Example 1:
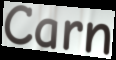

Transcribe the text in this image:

Carn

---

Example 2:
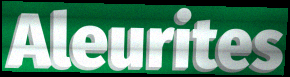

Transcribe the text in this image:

Aleurites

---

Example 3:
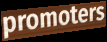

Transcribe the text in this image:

promoters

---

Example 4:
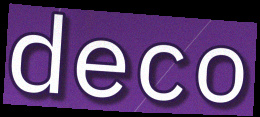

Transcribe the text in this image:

deco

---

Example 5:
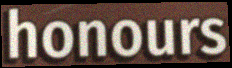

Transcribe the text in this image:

honours